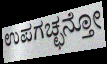
ಉಪಗಚ್ಛನ್ತೋ